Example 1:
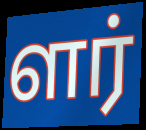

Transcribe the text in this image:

ளர்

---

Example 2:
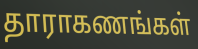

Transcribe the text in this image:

தாராகணங்கள்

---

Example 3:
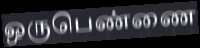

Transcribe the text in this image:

ஒருபெண்ணை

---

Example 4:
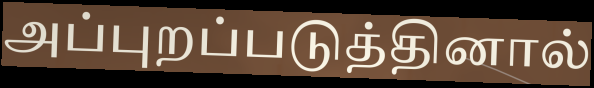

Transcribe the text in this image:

அப்புறப்படுத்தினால்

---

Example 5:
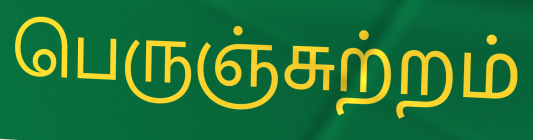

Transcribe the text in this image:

பெருஞ்சுற்றம்